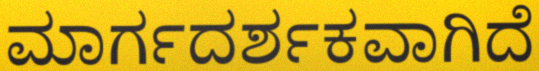
ಮಾರ್ಗದರ್ಶಕವಾಗಿದೆ